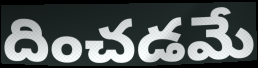
దించడమే